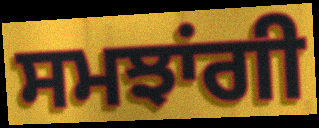
ਸਮਝਾਂਗੀ